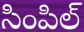
సింపిల్